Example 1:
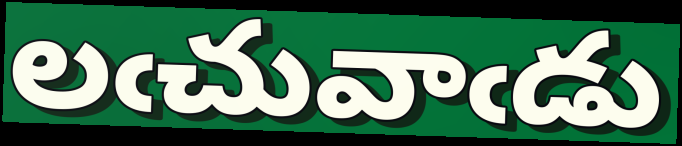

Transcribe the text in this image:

లఁచువాఁడు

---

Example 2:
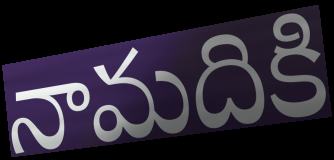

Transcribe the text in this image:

నామదికి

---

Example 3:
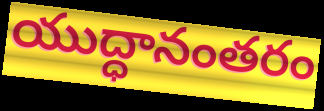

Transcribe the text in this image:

యుద్ధానంతరం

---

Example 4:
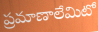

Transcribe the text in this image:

ప్రమాణాలేమిటో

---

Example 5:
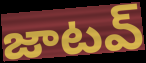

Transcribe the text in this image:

జాటవ్